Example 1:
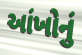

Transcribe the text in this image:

આંખોનું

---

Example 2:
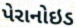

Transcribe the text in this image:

પેરાનોઇડ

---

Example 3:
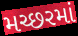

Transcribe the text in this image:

મચ્છરમાં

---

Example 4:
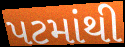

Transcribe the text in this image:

પટમાંથી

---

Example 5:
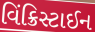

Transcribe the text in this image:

વિંક્રિસ્ટાઈન